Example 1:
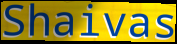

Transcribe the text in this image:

Shaivas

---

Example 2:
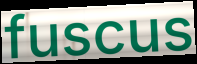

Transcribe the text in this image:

fuscus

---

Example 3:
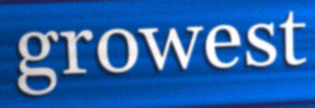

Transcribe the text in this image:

growest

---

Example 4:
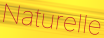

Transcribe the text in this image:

Naturelle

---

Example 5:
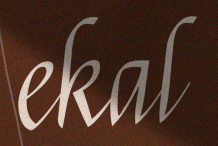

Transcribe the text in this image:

ekal